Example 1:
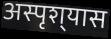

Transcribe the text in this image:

अस्पृश्यास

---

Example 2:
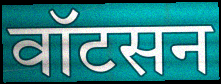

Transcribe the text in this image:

वॉटसन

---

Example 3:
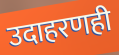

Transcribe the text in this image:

उदाहरणही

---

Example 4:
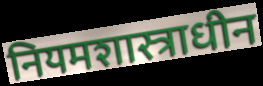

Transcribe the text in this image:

नियमशास्त्राधीन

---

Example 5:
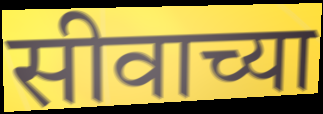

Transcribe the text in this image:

सीवाच्या